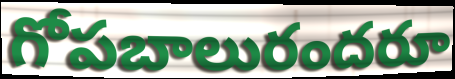
గోపబాలురందరూ